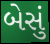
બેસું